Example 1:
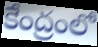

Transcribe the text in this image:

కేంద్రంలో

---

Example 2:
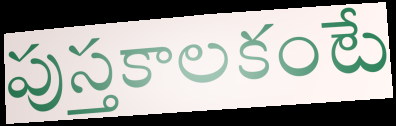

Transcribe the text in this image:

పుస్తకాలకంటే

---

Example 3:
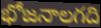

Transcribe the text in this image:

భోజనాలగది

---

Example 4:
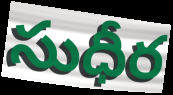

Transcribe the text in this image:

సుధీర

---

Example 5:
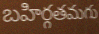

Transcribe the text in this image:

బహిర్గతమగు